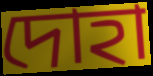
দোহা